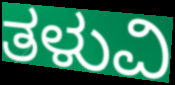
ತಳುವಿ